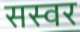
सस्वर